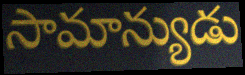
సామాన్యుడు